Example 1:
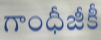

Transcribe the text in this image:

గాంధీజీకీ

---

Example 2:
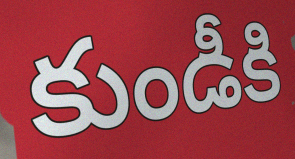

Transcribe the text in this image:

కుండీకి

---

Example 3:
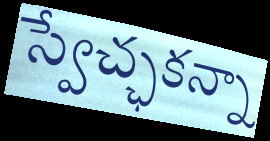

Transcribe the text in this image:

స్వేచ్ఛకన్నా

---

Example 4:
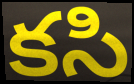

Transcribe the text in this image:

కసి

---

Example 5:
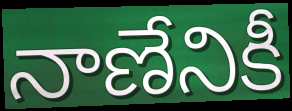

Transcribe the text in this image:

నాణేనికీ